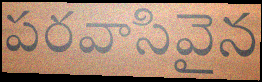
పరవాసివైన